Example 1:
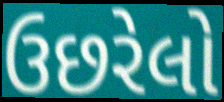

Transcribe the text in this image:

ઉછરેલો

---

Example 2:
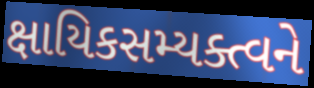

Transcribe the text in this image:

ક્ષાયિકસમ્યક્ત્વને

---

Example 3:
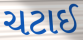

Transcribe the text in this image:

ચટાઈ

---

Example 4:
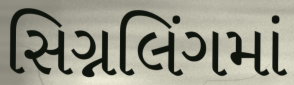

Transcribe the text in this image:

સિગ્નલિંગમાં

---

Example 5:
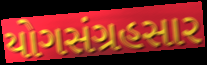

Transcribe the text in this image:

યોગસંગ્રહસાર